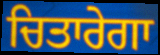
ਚਿਤਾਰੇਗਾ